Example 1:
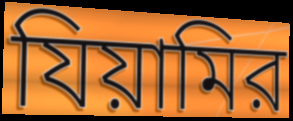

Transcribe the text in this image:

যিয়ামির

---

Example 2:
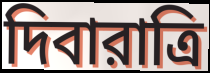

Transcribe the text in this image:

দিবারাত্রি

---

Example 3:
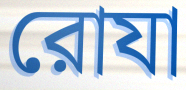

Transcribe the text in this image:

রোযা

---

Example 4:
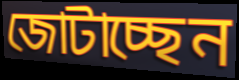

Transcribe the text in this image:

জোটাচ্ছেন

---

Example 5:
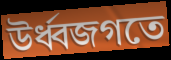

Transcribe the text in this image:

উর্ধ্বজগতে